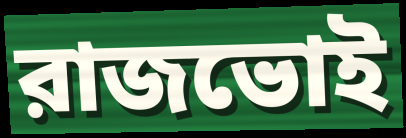
রাজভোই